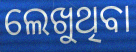
ଲେଖୁଥିବା